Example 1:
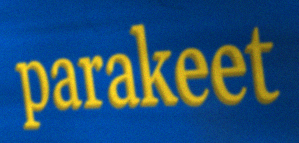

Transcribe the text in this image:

parakeet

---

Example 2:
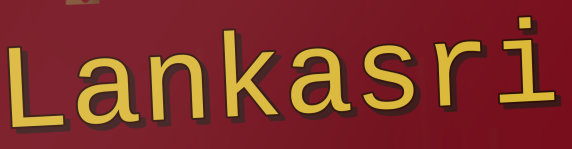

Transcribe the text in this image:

Lankasri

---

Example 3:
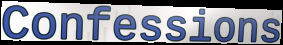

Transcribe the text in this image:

Confessions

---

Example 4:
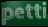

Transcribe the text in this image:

petti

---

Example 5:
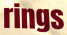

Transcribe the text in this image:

rings